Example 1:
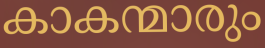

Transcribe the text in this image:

കാകന്മാരും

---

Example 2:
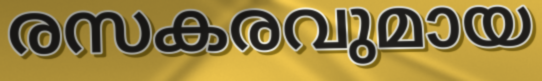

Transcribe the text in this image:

രസകരവുമായ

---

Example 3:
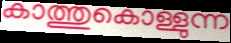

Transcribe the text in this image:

കാത്തുകൊള്ളുന്ന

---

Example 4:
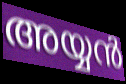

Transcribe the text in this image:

അയ്യൻ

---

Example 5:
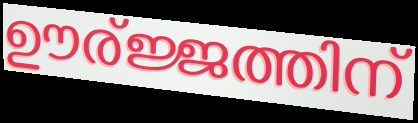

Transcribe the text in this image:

ഊര്ജ്ജത്തിന്